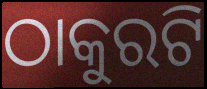
ଠାକୁରଟି